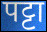
पट्टा